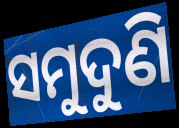
ସମୁଦୁଣି